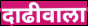
दाढीवाला